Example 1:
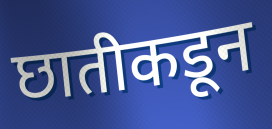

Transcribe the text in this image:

छातीकडून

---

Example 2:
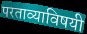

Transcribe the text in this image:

परताव्याविषयी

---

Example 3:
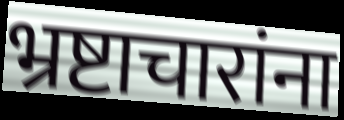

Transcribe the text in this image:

भ्रष्टाचारांना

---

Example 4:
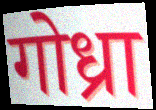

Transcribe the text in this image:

गोध्रा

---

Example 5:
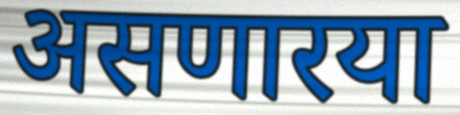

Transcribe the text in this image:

असणारया